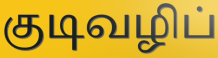
குடிவழிப்